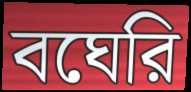
বঘেরি